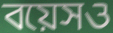
বয়েসও